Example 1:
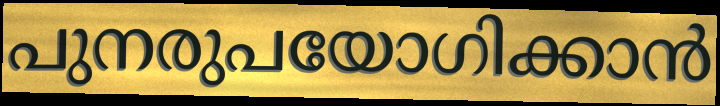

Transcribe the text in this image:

പുനരുപയോഗിക്കാൻ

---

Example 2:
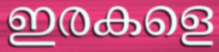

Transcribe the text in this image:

ഇരകളെ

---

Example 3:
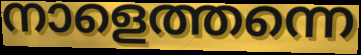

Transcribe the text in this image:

നാളെത്തന്നെ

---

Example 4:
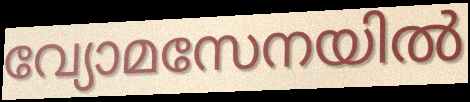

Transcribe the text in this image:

വ്യോമസേനയിൽ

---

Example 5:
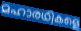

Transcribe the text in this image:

മഹാരഥികളെ